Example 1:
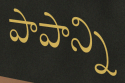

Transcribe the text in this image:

పాపాన్ని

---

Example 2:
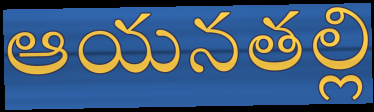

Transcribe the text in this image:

ఆయనతల్లి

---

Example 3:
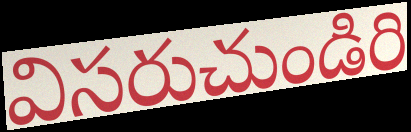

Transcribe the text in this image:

విసరుచుండిరి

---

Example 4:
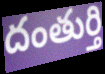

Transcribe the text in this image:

దంతుర్తి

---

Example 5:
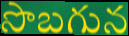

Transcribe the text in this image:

సొబగున